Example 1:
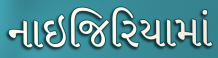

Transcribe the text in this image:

નાઇજિરિયામાં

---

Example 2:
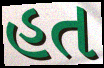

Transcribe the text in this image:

હત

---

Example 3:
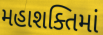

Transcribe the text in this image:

મહાશક્તિમાં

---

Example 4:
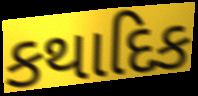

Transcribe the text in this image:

કથાદિક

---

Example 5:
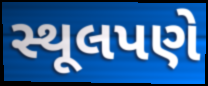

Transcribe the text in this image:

સ્થૂલપણે